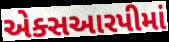
એક્સઆરપીમાં